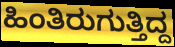
ಹಿಂತಿರುಗುತ್ತಿದ್ದ